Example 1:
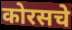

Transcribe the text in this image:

कोरसचे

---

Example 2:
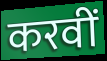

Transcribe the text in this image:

करवीं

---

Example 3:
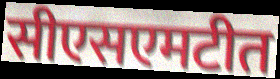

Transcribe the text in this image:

सीएसएमटीत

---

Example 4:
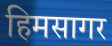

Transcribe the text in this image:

हिमसागर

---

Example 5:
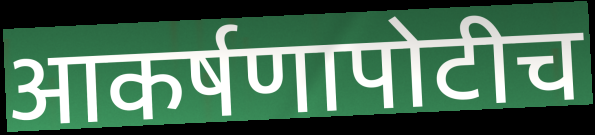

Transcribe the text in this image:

आकर्षणापोटीच